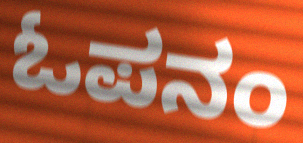
ಓಪನಂ